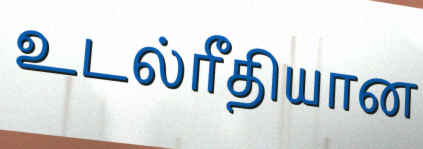
உடல்ரீதியான